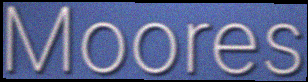
Moores